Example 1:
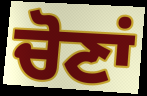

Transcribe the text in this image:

ਚੋਣਾਂ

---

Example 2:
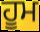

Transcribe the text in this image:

ਹੂਮ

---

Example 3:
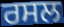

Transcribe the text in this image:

ਰਸਲ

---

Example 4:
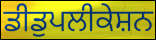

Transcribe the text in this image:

ਡੀਡੁਪਲੀਕੇਸ਼ਨ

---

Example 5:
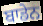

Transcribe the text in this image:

ਬਾਡੇਨ